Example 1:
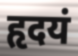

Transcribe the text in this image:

हृदयं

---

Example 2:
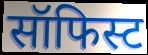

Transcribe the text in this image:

सॉफिस्ट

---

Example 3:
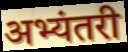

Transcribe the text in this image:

अभ्यंतरी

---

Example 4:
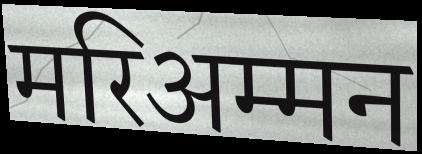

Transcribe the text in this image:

मरिअम्मन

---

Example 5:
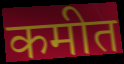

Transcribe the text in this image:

कमीत